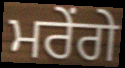
ਮਰੇਂਗੇ